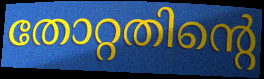
തോറ്റതിന്റെ